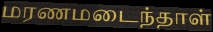
மரணமடைந்தாள்